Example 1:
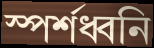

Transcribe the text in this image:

স্পৰ্শধ্বনি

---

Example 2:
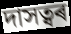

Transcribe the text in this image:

দাসত্বৰ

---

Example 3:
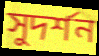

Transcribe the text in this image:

সুদৰ্শন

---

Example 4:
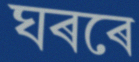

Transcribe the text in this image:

ঘৰৰে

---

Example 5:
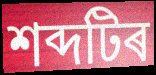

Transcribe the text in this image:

শব্দটিৰ